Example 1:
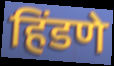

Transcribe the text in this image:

हिंडणे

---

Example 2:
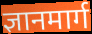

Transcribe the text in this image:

ज्ञानमार्ग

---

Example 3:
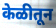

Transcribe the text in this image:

केळीतून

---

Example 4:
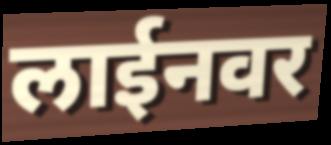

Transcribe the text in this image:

लाईनवर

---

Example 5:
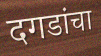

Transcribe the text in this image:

दगडांचा